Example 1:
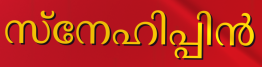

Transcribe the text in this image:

സ്നേഹിപ്പിൻ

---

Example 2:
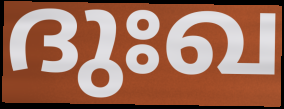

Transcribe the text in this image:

ദുഃഖ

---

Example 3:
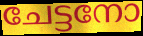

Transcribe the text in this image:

ചേട്ടനോ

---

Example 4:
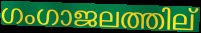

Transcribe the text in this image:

ഗംഗാജലത്തില്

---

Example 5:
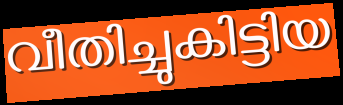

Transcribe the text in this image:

വീതിച്ചുകിട്ടിയ